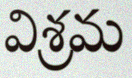
విశ్రమ